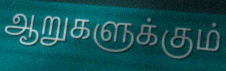
ஆறுகளுக்கும்